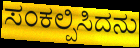
ಸಂಕಲ್ಪಿಸಿದನು